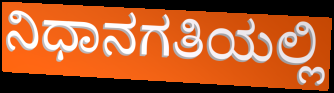
ನಿಧಾನಗತಿಯಲ್ಲಿ